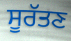
ਸੂਰੱਤਣ